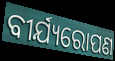
ବୀର୍ଯ୍ୟରୋପଣ